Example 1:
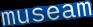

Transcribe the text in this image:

museam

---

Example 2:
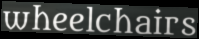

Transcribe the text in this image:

wheelchairs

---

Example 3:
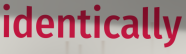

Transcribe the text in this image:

identically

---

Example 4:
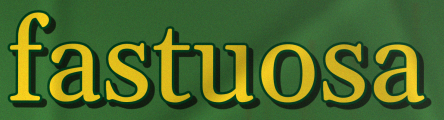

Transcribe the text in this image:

fastuosa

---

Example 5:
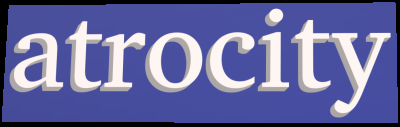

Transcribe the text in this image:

atrocity